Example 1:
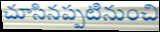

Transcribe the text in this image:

చూసినప్పటినుంచి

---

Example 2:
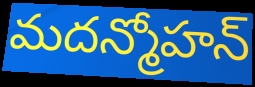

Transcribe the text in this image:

మదన్మోహన్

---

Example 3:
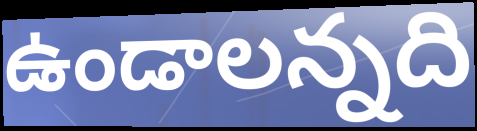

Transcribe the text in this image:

ఉండాలన్నది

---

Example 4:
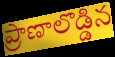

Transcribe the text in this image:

ప్రాణాలొడ్డిన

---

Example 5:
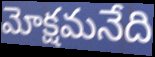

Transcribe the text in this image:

మోక్షమనేది